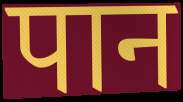
पान